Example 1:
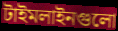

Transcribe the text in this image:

টাইমলাইনগুলো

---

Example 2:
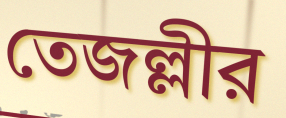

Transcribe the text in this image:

তেজল্লীর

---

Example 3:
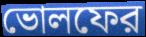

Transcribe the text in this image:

ভোলফের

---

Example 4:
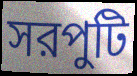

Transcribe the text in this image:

সরপুটি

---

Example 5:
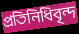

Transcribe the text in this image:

প্রতিনিধিবৃন্দ